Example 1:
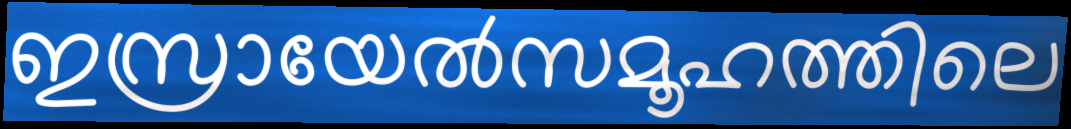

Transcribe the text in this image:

ഇസ്രായേൽസമൂഹത്തിലെ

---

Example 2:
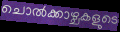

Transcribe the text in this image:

ചൊൽക്കാഴ്ചകളുടെ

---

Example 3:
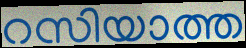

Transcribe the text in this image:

റസിയാത്ത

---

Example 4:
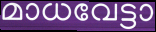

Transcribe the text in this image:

മാധവേട്ടാ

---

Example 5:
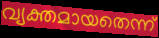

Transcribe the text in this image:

വ്യക്തമായതെന്ന്